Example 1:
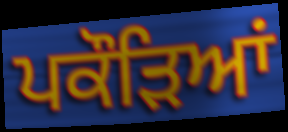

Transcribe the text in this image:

ਪਕੌਡ਼ਿਆਂ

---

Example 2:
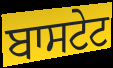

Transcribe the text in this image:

ਬਾਸਟੇਟ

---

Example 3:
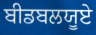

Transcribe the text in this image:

ਬੀਡਬਲਯੂਏ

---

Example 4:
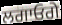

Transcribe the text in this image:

ਲਗਾਓਗੇ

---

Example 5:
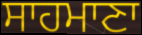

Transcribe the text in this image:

ਸਾਹਮਾਣਾ